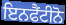
ਇਨਫੈਂਟੀਨੋ